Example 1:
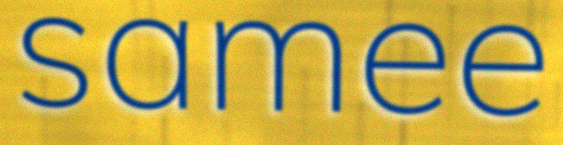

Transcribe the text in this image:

samee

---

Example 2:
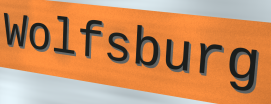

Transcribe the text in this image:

Wolfsburg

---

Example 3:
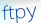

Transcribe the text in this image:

ftpy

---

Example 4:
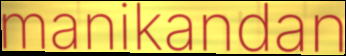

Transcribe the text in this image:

manikandan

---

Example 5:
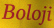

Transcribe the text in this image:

Boloji